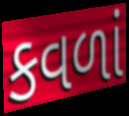
કવળાં